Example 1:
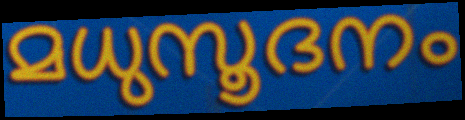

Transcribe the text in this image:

മധുസൂദനം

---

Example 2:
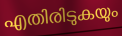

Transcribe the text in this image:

എതിരിടുകയും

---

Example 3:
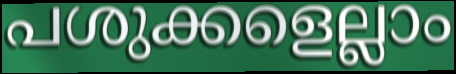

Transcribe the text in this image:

പശുക്കളെല്ലാം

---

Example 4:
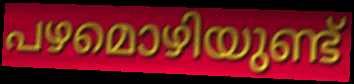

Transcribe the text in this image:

പഴമൊഴിയുണ്ട്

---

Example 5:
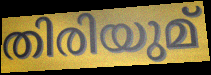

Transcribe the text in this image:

തിരിയുമ്